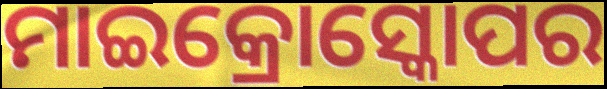
ମାଇକ୍ରୋସ୍କୋପର